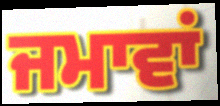
ਜਮਾਵਾਂ